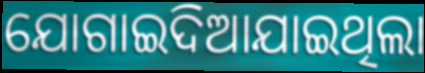
ଯୋଗାଇଦିଆଯାଇଥିଲା